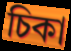
চিকা